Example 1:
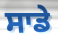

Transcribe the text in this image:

ਸਾਡੇ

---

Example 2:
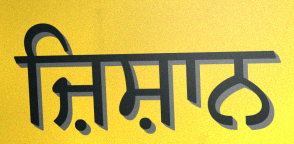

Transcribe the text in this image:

ਜ਼ਿਸ਼ਾਨ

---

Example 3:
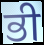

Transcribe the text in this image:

ਭੀ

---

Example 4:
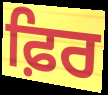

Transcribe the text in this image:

ਫ਼ਿਰ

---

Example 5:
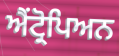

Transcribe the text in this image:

ਐਂਟ੍ਰੋਪਿਅਨ